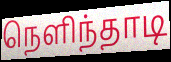
நெளிந்தாடி